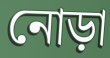
নোড়া